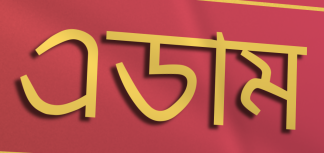
এডাম